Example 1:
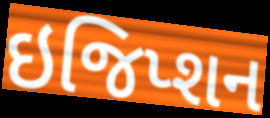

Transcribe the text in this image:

ઇજિપ્શન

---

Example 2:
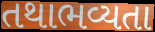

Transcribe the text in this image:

તથાભવ્યતા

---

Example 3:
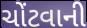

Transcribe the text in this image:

ચોંટવાની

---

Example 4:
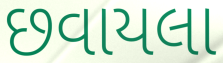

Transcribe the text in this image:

છવાયલા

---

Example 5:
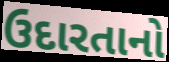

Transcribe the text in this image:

ઉદારતાનો